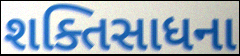
શક્તિસાધના